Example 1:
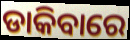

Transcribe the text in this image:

ଡାକିବାରେ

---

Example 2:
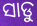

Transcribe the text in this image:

ସାଡୁ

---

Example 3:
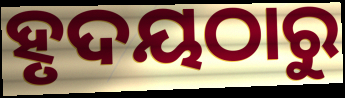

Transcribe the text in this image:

ହୃଦୟଠାରୁ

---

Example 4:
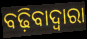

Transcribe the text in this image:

ବଢ଼ିବାଦ୍ୱାରା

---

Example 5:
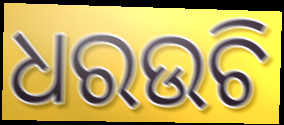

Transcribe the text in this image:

ଧରଉଚି